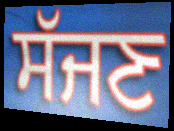
ਸੱਜਣ